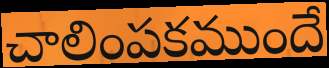
చాలింపకముందే